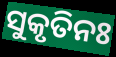
ସୁକୃତିନଃ